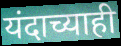
यंदाच्याही